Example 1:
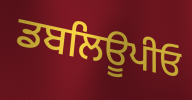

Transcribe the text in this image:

ਡਬਲਿਊਪੀਓ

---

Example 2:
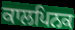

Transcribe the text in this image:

ਕਾਲਪਿਨਕ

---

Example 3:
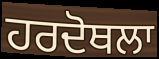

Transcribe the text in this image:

ਹਰਦੋਥਲਾ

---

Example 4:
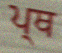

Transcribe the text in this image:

ਪ੍ਥ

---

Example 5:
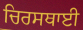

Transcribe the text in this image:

ਚਿਰਸਥਾਈ